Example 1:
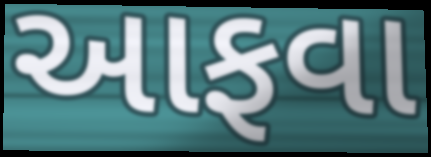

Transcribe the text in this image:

આફવા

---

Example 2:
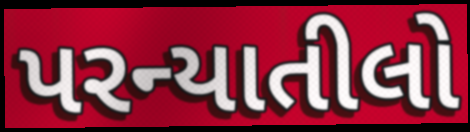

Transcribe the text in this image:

પરન્યાતીલો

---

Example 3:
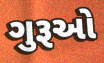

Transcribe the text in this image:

ગુરૂઓ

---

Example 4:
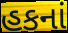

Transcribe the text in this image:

હકનાં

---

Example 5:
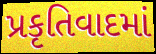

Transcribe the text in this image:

પ્રકૃતિવાદમાં